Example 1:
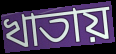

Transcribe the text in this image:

খাতায়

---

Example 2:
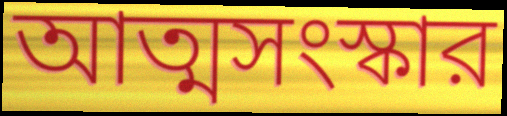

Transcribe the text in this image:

আত্মসংস্কার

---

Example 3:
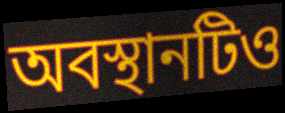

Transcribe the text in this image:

অবস্থানটিও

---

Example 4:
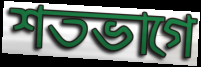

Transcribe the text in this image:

শতভাগে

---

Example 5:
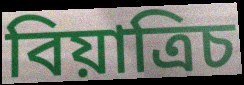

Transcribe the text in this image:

বিয়াত্রিচ